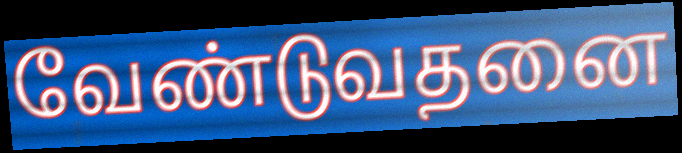
வேண்டுவதனை